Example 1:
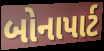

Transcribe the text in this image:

બોનાપાર્ટ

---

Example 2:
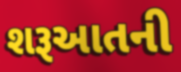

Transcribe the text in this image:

શરૂઆતની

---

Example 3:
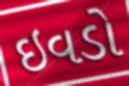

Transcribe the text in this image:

ઇવડો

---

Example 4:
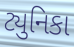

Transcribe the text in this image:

ટ્યુનિકા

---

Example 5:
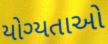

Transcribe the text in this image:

યોગ્યતાઓ